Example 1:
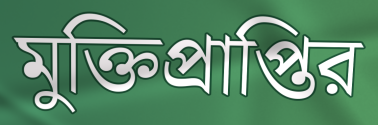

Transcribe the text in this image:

মুক্তিপ্রাপ্তির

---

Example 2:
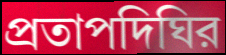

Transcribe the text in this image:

প্রতাপদিঘির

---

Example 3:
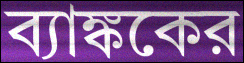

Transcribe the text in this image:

ব্যাঙ্ককের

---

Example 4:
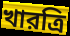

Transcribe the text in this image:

খারত্রি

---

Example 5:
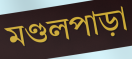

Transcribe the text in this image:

মণ্ডলপাড়া